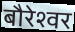
बौरेश्वर